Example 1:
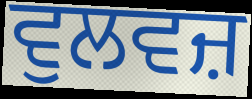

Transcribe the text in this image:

ਵੁਲਵਜ਼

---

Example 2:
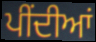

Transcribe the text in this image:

ਪੀਂਦੀਆਂ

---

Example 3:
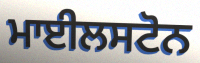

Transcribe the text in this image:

ਮਾਈਲਸਟੋਨ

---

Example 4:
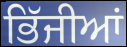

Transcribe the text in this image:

ਭਿੱਜੀਆਂ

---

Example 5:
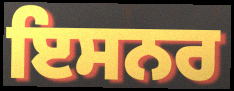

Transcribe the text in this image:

ਇਸਨਰ